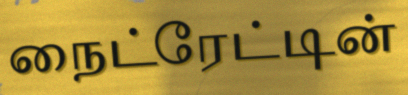
நைட்ரேட்டின்